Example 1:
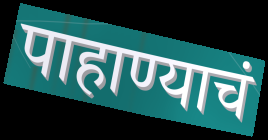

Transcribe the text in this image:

पाहाण्याचं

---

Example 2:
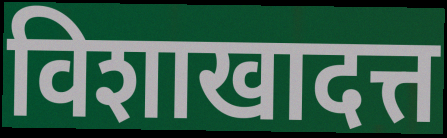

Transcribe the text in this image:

विशाखादत्त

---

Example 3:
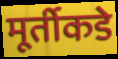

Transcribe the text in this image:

मूर्तीकडे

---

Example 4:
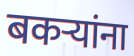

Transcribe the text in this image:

बकर्‍यांना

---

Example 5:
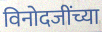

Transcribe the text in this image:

विनोदजींच्या